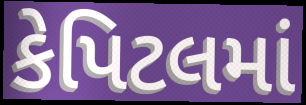
કેપિટલમાં